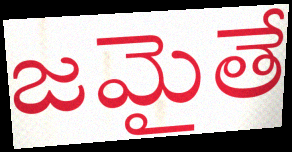
జమైతే